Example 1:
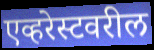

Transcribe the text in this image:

एव्हरेस्टवरील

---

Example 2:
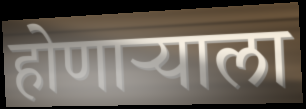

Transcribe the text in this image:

होणाऱ्याला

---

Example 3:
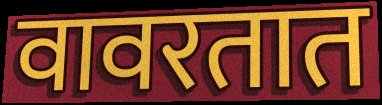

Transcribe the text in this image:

वावरतात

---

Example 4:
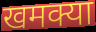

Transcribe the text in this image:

खमक्या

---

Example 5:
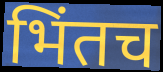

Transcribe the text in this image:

भिंतच